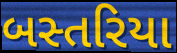
બસ્તરિયા